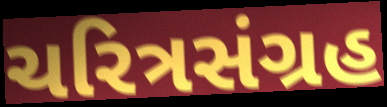
ચરિત્રસંગ્રહ